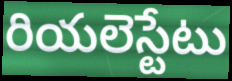
రియలెస్టేటు